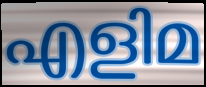
എളിമ